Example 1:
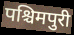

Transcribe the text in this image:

पश्चिमपुरी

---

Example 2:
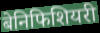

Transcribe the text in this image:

बेनिफिशियरी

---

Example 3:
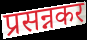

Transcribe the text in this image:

प्रसन्नकर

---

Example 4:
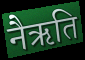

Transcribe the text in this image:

नैऋति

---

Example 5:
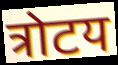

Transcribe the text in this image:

त्रोटय